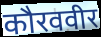
कौरववीर